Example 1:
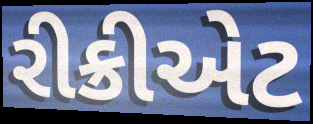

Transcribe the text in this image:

રીક્રીએટ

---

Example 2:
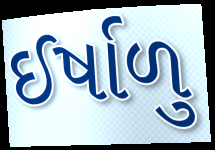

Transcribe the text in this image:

ઈર્ષાળુ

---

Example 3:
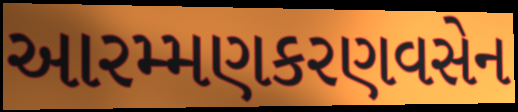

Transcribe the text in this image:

આરમ્મણકરણવસેન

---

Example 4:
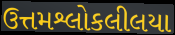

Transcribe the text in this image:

ઉત્તમશ્લોકલીલયા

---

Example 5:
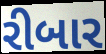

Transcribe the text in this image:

રીબાર